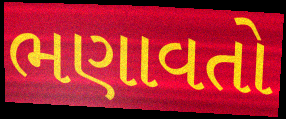
ભણાવતો